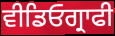
ਵੀਡਿਓਗ੍ਰਾਫੀ